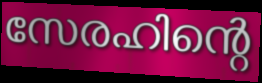
സേരഹിന്റെ